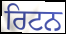
ਰਿਟਨ